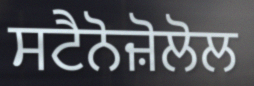
ਸਟੈਨੋਜ਼ੋਲੋਲ